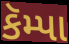
કૅમ્પા